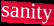
sanity